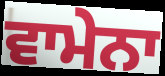
ਵਾਮੇਨਾ